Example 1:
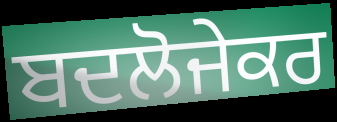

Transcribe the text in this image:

ਬਦਲੋਜੇਕਰ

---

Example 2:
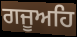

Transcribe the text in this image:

ਗਜੂਅਹਿ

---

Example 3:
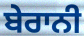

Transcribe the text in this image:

ਬੇਰਾਨੀ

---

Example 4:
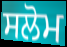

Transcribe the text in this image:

ਸਲੋਮ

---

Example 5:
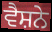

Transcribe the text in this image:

ਵੈਸ਼ਨੇ